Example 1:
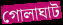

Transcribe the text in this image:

গোলাঘাট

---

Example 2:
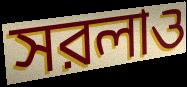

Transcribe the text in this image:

সরলাও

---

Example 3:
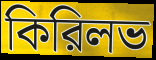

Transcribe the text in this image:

কিরিলভ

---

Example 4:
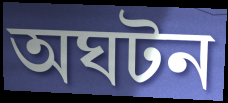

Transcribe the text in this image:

অঘটন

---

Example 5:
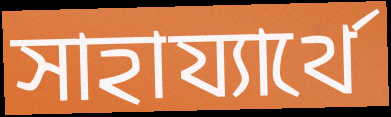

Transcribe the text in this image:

সাহায্যার্থে